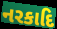
નરકાદિ